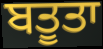
ਬਤੂਤਾ